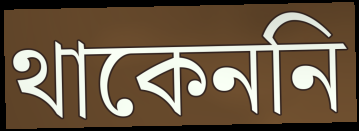
থাকেননি